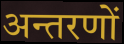
अन्तरणों